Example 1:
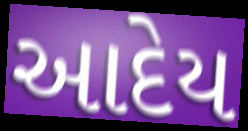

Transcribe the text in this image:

આદેય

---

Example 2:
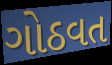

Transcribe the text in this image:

ગોઠવત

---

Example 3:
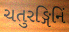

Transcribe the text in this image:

ચતુરઙ્ગિનિં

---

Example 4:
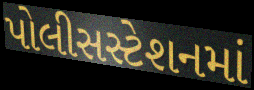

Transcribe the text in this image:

પોલીસસ્ટેશનમાં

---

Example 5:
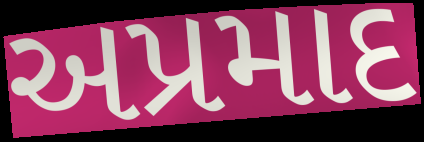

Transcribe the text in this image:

અપ્રમાદ